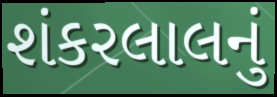
શંકરલાલનું